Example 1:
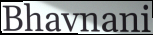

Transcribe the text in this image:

Bhavnani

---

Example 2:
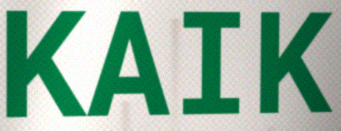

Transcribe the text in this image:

KAIK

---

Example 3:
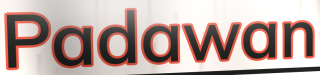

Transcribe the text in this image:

Padawan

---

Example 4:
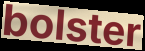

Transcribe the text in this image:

bolster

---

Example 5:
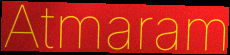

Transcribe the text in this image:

Atmaram